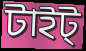
টাইট্